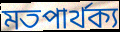
মতপার্থক্য